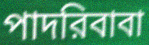
পাদরিবাবা